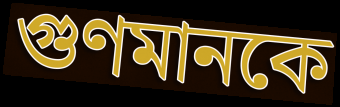
গুণমানকে